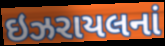
ઇઝરાયલનાં